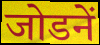
जोडनें